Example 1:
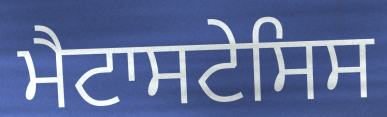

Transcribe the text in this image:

ਮੈਟਾਸਟੇਸਿਸ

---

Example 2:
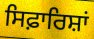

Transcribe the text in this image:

ਸਿਫ਼ਾਰਿਸ਼ਾਂ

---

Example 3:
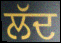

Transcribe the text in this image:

ਲੱਦ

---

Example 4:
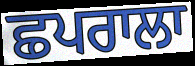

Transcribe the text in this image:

ਛਪਰਾਲਾ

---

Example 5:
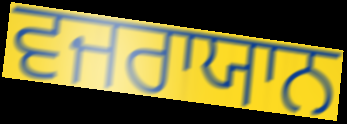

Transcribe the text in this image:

ਵਜਰਾਯਾਨ